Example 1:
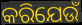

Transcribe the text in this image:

କରିଯେଉଁ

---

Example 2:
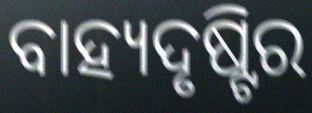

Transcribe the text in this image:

ବାହ୍ୟଦୃଷ୍ଟିର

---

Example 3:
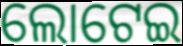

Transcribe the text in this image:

ଲୋଟେଇ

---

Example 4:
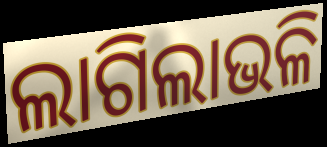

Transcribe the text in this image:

ଲାଗିଲାଭଳି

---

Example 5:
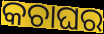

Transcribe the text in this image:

କଚାଘର